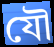
যৌ